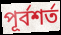
পূর্বশর্ত